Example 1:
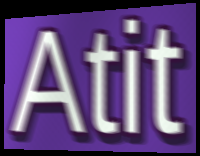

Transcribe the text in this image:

Atit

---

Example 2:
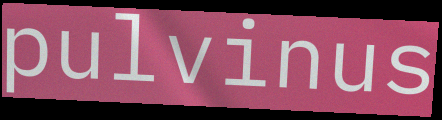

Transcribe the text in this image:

pulvinus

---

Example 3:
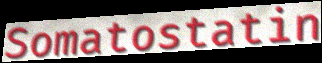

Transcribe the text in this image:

Somatostatin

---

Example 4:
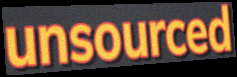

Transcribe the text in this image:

unsourced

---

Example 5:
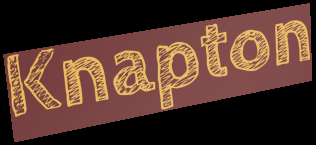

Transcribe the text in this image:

Knapton